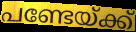
പണ്ടേയ്ക്ക്